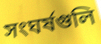
সংঘর্ষগুলি